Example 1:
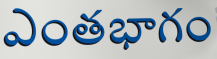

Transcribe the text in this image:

ఎంతభాగం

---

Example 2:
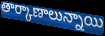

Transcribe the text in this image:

తార్కాణాలున్నాయి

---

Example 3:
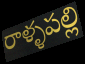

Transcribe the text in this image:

రాళ్ళపల్లి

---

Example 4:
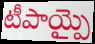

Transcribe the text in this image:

టీపాయ్పై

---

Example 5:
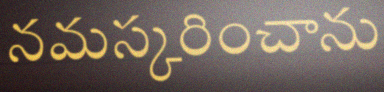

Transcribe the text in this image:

నమస్కరించాను